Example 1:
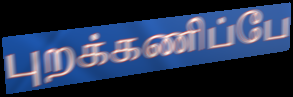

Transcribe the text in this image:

புறக்கணிப்பே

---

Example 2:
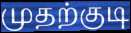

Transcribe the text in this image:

முதற்குடி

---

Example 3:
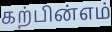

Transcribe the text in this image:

கற்பின்எம்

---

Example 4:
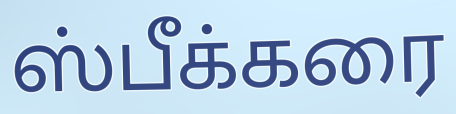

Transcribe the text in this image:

ஸ்பீக்கரை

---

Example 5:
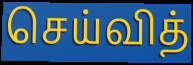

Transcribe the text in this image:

செய்வித்